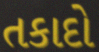
તકાદો